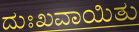
ದುಃಖವಾಯಿತು